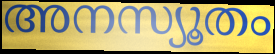
അനസ്യൂതം